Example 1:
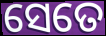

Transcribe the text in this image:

ସେତେ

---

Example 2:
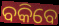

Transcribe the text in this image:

ବକିବେ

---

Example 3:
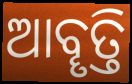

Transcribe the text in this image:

ଆବୄତ୍ତି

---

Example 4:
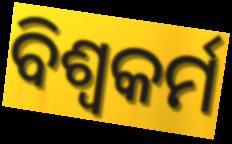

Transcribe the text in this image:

ବିଶ୍ୱକର୍ମ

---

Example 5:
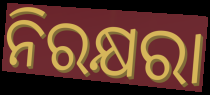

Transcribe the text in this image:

ନିରକ୍ଷରା